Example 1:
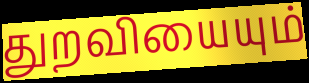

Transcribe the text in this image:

துறவியையும்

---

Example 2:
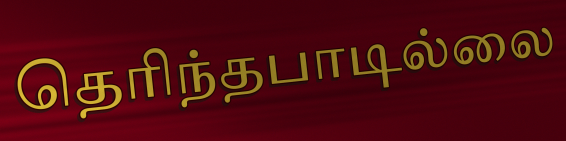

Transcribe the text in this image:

தெரிந்தபாடில்லை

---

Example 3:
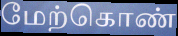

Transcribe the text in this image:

மேற்கொண்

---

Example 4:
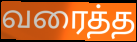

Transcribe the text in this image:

வரைத்த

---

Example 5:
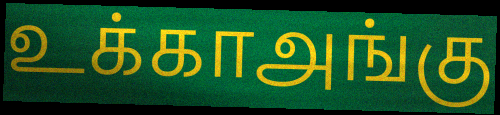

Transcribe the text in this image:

உக்காஅங்கு